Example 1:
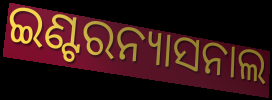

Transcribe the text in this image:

ଇଣ୍ଟରନ୍ୟାସନାଲ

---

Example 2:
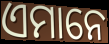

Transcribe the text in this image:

ଏମାନେ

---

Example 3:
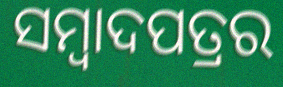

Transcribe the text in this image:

ସମ୍ବାଦପତ୍ରର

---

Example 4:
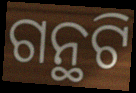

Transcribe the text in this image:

ଗନ୍ଥଟି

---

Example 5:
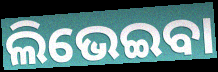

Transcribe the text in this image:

ଲିଭେଇବା